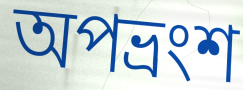
অপভ্ৰংশ